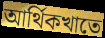
আর্থিকখাতে